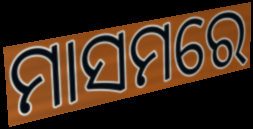
ମାସମରେ